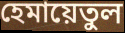
হেমায়েতুল